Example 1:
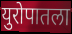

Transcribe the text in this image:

युरोपातला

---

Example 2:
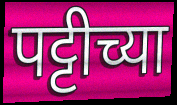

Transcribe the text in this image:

पट्टीच्या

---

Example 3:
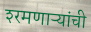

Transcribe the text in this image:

श्रमणाऱ्यांची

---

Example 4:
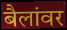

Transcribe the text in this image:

बैलांवर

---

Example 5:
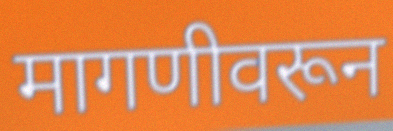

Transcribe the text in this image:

मागणीवरून